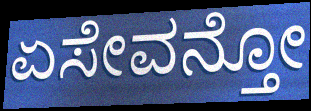
ಏಸೇವನ್ತೋ